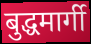
बुद्धमार्गी